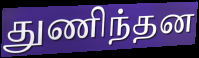
துணிந்தன